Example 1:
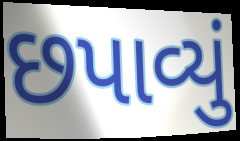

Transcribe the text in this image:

છપાવ્યું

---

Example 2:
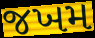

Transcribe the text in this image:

જખમ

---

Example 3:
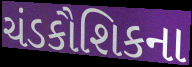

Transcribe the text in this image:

ચંડકૌશિકના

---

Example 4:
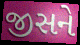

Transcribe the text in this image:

જીસને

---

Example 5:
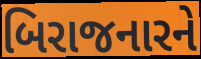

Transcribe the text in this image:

બિરાજનારને